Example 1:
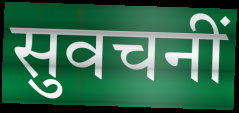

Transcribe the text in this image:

सुवचनीं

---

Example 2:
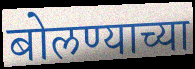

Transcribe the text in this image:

बोलण्याच्या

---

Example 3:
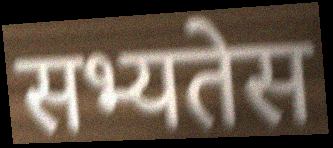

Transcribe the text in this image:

सभ्यतेस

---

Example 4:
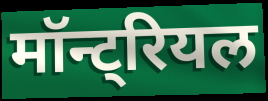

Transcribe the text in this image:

मॉन्ट्रियल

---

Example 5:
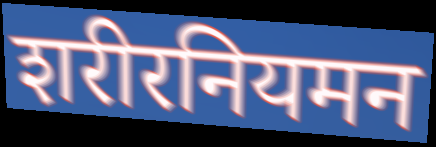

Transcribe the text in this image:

शरीरनियमन